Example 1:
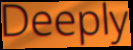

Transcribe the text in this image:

Deeply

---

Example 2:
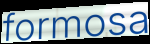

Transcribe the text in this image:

formosa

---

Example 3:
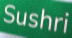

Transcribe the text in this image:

Sushri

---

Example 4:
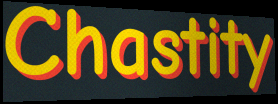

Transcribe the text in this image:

Chastity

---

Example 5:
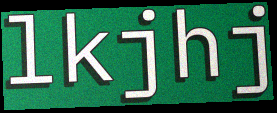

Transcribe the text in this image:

lkjhj